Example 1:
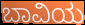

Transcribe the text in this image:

ಬಾವಿಯ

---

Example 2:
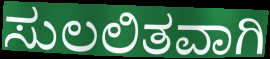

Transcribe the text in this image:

ಸುಲಲಿತವಾಗಿ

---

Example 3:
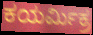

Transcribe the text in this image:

ಕಯರ್ಮಿಕ್ರ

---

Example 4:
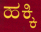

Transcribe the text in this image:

ಹಕ್ಕಿ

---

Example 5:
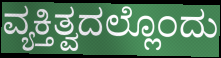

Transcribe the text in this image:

ವ್ಯಕ್ತಿತ್ವದಲ್ಲೊಂದು